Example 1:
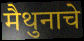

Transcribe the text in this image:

मैथुनाचे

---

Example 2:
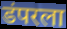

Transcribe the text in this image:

डंपरला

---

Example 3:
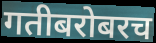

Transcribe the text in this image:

गतीबरोबरच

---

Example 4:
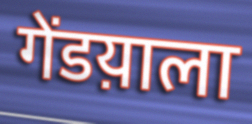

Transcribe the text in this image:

गेंडय़ाला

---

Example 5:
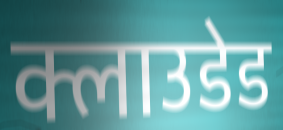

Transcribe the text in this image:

क्लाउडेड